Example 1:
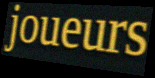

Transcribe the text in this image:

joueurs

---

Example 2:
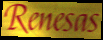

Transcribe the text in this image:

Renesas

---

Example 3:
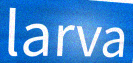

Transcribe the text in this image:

larva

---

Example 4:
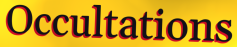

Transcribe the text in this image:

Occultations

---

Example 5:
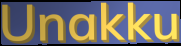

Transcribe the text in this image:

Unakku